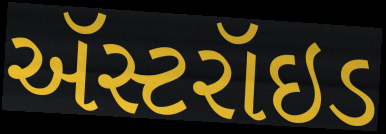
ઍસ્ટરૉઇડ